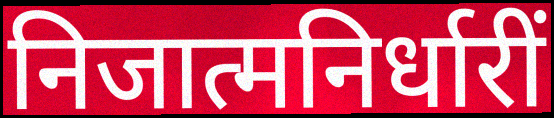
निजात्मनिर्धारीं